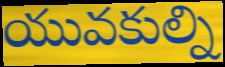
యువకుల్ని